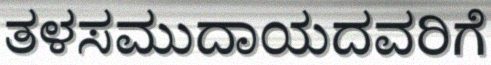
ತಳಸಮುದಾಯದವರಿಗೆ